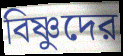
বিষ্ণুদের